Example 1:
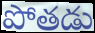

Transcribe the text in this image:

పోతడు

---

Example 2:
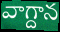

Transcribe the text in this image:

వాగ్దాన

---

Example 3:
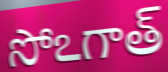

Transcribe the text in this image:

సోఽగాత్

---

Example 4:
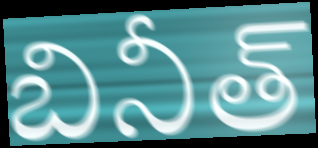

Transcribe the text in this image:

బినీత్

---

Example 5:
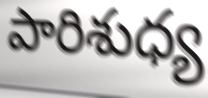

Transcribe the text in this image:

పారిశుధ్య